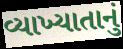
વ્યાખ્યાતાનું